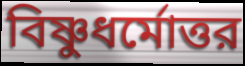
বিষ্ণুধর্মোত্তর